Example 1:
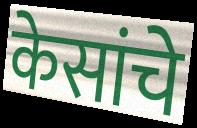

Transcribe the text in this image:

केसांचे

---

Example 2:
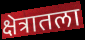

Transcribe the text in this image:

क्षेत्रातला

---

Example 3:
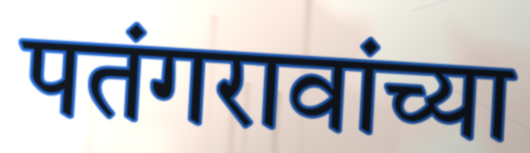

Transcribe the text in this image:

पतंगरावांच्या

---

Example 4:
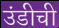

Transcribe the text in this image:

उंडीची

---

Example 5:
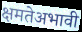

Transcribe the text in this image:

क्षमतेअभावी